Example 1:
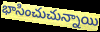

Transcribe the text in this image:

భాసించుచున్నాయి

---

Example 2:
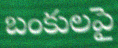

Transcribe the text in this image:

బంకులపై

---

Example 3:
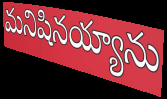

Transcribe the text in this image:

మనిషినయ్యాను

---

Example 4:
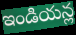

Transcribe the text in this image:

ఇండియన్ల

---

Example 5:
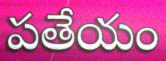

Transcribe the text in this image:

పతేయం